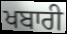
ਖਬਾਰੀ